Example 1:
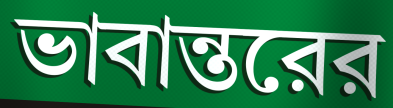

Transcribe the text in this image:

ভাবান্তরের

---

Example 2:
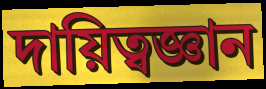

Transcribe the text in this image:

দায়িত্বজ্ঞান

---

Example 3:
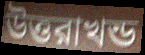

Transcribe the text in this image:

উত্তরাখন্ড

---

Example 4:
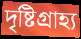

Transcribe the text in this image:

দৃষ্টিগ্রাহ্য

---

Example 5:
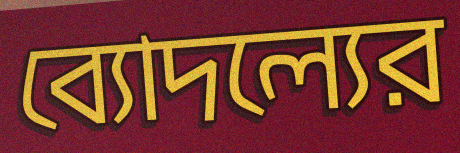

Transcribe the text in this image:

ব্যোদল্যের